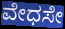
ವೇಧಸೇ